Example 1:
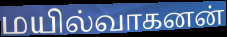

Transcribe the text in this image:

மயில்வாகனன்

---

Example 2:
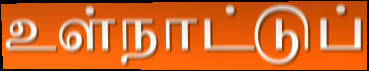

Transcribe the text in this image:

உள்நாட்டுப்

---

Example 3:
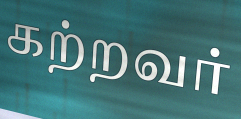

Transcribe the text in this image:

கற்றவர்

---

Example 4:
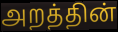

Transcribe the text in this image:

அறத்தின்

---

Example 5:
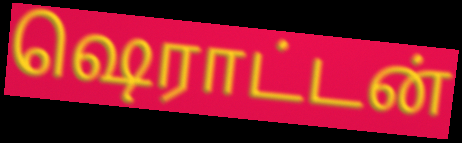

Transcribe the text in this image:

ஷெராட்டன்